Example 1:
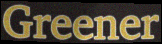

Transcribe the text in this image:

Greener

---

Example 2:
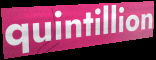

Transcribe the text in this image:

quintillion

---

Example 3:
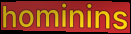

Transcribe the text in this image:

hominins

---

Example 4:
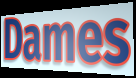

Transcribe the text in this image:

Dames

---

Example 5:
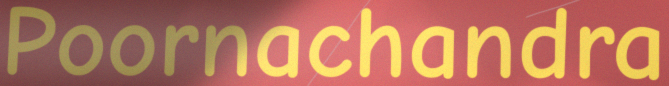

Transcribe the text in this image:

Poornachandra